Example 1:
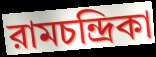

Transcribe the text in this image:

রামচন্দ্রিকা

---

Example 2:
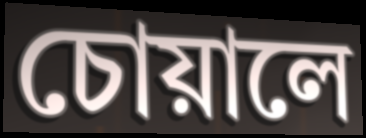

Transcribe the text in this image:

চোয়ালে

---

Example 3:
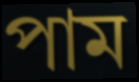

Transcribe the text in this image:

পাম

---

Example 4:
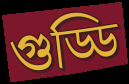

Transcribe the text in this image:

গুড্ডি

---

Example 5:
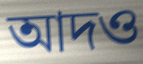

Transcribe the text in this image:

আদও